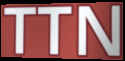
TTN